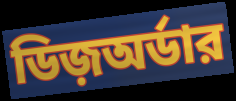
ডিজ়অর্ডার